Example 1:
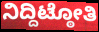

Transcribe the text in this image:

ನಿದ್ದಿಟ್ಠೋತಿ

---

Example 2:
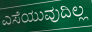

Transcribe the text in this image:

ಎಸೆಯುವುದಿಲ್ಲ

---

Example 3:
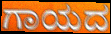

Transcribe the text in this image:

ಗಾಯದ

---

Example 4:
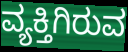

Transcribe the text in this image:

ವ್ಯಕ್ತಿಗಿರುವ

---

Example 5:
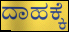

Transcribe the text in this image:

ದಾಹಕ್ಕೆ